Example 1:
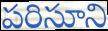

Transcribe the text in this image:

పరిసూని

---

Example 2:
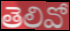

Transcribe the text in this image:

తెలివో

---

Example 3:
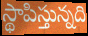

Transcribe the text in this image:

స్థాపిస్తున్నది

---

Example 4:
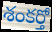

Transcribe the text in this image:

శంకర్తో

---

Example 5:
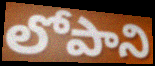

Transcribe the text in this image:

లోపాని